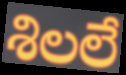
శిలలే